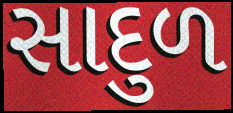
સાદુળ